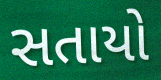
સતાયો